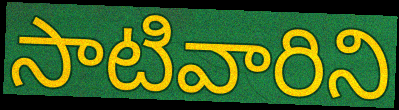
సాటివారిని